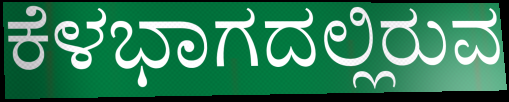
ಕೆಳಭಾಗದಲ್ಲಿರುವ